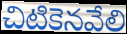
చిటికెనవేలి